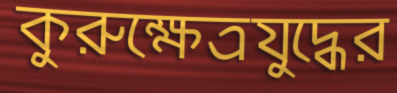
কুরুক্ষেত্রযুদ্ধের